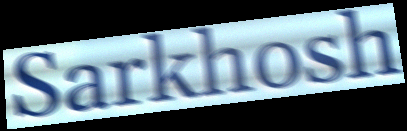
Sarkhosh